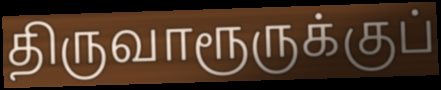
திருவாரூருக்குப்